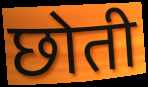
छोती